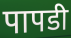
पापडी